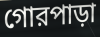
গোরপাড়া